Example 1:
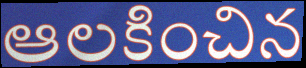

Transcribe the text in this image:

ఆలకించిన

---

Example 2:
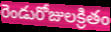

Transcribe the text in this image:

రెండురోజులక్రితం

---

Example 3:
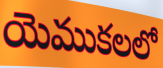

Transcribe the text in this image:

యెముకలలో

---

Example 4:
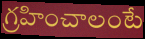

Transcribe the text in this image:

గ్రహించాలంటే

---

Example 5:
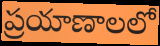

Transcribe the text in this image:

ప్రయాణాలలో